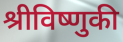
श्रीविष्णुकी